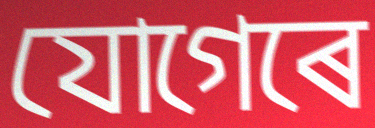
যোগেৰে